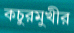
কচুরমুখীর